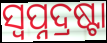
ସ୍ୱପ୍ନଦ୍ରଷ୍ଟା